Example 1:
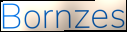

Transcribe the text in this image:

Bornzes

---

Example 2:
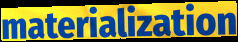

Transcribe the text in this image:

materialization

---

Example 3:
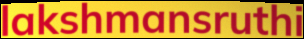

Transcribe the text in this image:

lakshmansruthi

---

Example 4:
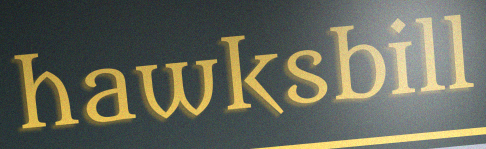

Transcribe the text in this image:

hawksbill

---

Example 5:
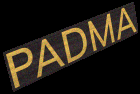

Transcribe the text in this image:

PADMA